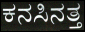
ಕನಸಿನತ್ತ